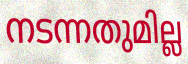
നടന്നതുമില്ല